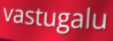
vastugalu